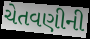
ચેતવણીની